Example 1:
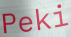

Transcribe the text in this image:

Peki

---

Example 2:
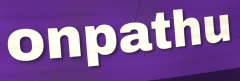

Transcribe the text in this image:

onpathu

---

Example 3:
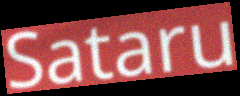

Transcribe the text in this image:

Sataru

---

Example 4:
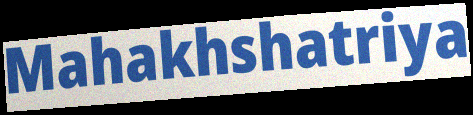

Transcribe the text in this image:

Mahakhshatriya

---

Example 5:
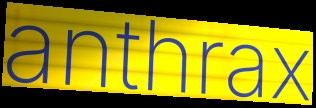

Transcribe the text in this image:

anthrax